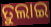
ତୁଲାଇ